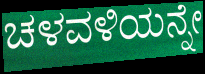
ಚಳವಳಿಯನ್ನೇ